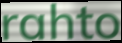
rahto